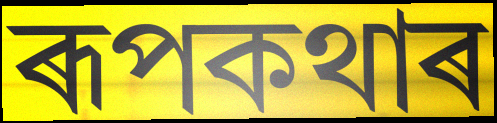
ৰূপকথাৰ